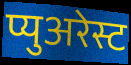
प्युअरेस्ट